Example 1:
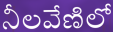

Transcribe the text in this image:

నీలవేణిలో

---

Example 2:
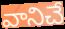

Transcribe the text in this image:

వానిచే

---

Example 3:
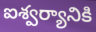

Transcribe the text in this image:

ఐశ్వర్యానికి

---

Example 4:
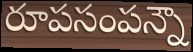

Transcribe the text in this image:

రూపసంపన్నౌ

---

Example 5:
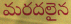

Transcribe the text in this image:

మరదలైన